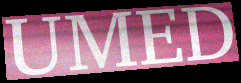
UMED